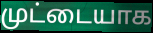
முட்டையாக